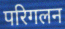
परिगलन